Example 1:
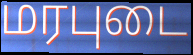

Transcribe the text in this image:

மரபுடை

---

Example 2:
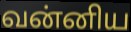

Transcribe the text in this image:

வன்னிய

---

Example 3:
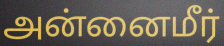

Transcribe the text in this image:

அன்னைமீர்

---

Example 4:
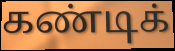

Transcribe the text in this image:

கண்டிக்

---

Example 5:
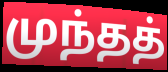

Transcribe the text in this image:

முந்தத்